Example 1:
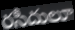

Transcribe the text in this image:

రసీదులూ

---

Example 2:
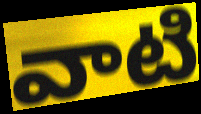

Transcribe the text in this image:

వాటి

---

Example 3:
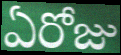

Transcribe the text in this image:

ఏరోజు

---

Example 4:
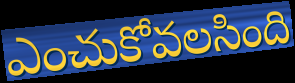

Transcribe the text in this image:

ఎంచుకోవలసింది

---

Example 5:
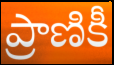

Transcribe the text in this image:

ప్రాణికీ